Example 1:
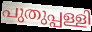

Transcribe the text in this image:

പുതുപ്പള്ളി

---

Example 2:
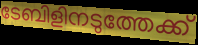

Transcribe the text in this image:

ടേബിളിനടുത്തേക്ക്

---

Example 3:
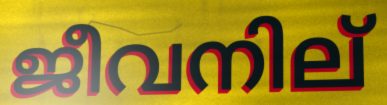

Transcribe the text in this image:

ജീവനില്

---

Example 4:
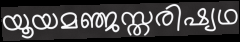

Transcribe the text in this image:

യൂയമഞ്ജസ്തരിഷ്യഥ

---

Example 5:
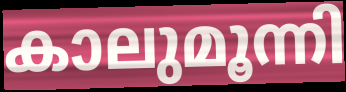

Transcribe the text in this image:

കാലുമൂന്നി